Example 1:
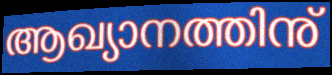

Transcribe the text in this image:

ആഖ്യാനത്തിനു്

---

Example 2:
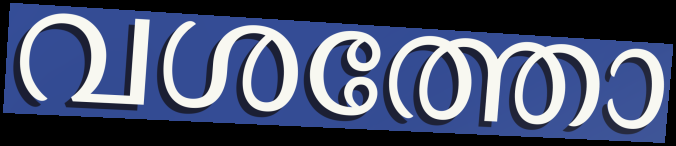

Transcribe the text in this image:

വശത്തോ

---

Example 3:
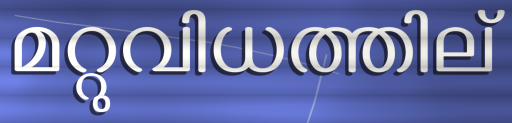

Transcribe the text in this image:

മറ്റുവിധത്തില്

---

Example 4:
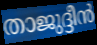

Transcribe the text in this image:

താജുദ്ദീൻ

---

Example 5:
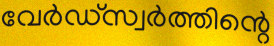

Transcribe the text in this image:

വേർഡ്സ്വർത്തിന്റെ